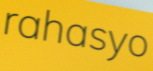
rahasyo